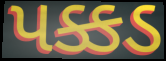
પક્કડ